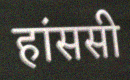
हांससी